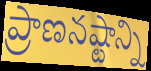
ప్రాణనష్టాన్ని